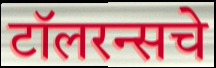
टॉलरन्सचे